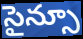
సైన్సూ